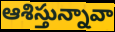
ఆశిస్తున్నావా